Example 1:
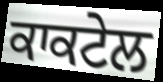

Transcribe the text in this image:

ਕਾਕਟੇਲ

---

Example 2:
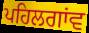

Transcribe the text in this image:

ਪਹਿਲਗਾਂਵ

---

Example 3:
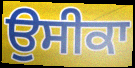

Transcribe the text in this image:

ਉਸੀਕਾ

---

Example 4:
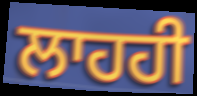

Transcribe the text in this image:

ਲਾਹਹੀ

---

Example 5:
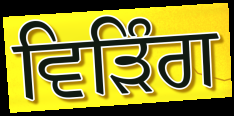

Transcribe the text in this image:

ਵਿੜਿੰਗ